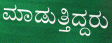
ಮಾಡುತ್ತಿದ್ದರು